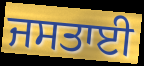
ਜਸਤਾਈ